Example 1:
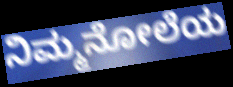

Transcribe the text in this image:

ನಿಮ್ಮನೋಲೆಯ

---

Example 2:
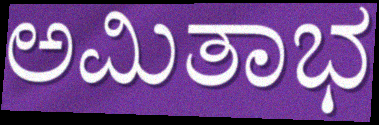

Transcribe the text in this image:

ಅಮಿತಾಭ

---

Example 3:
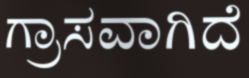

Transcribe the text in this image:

ಗ್ರಾಸವಾಗಿದೆ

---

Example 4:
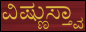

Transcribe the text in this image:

ವಿಷ್ಣುಸ್ತ್ವಾ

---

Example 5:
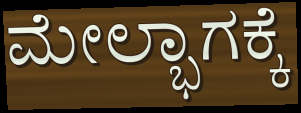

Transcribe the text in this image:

ಮೇಲ್ಭಾಗಕ್ಕೆ